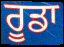
ਰੂਡਾ